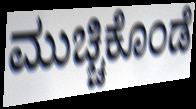
ಮುಚ್ಚಿಕೊಂಡೆ